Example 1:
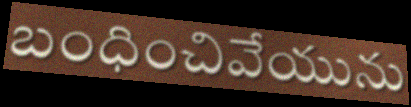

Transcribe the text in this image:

బంధించివేయును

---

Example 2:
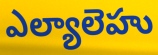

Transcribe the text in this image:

ఎల్యాలెహు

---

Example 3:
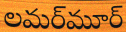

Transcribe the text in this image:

లమర్‌మూర్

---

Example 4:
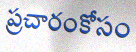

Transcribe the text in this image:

ప్రచారంకోసం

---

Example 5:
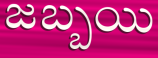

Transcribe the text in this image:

జబ్బయి